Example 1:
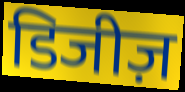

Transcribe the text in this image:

डिजीज़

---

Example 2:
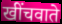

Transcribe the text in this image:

खींचवाते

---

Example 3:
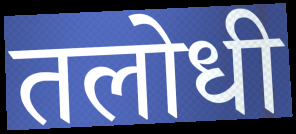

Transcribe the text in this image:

तलोधी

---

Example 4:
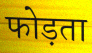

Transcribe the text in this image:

फोड़ता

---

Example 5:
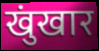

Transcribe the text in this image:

खुंखार